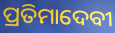
ପ୍ରତିମାଦେବୀ